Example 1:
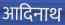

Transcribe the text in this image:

आदिनाथ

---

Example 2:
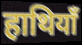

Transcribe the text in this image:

हाथियाँ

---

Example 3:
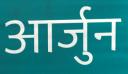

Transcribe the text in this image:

आर्जुन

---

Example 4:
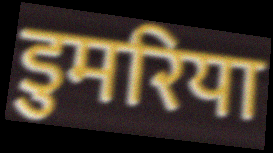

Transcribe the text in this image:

डुमरिया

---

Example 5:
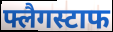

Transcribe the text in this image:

फ्लैगस्टाफ